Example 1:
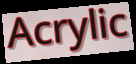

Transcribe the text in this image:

Acrylic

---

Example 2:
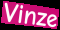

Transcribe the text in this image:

Vinze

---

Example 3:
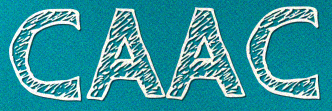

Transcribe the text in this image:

CAAC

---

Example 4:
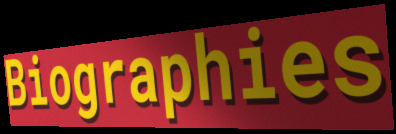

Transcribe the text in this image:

Biographies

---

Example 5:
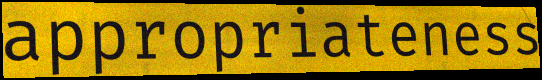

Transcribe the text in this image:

appropriateness